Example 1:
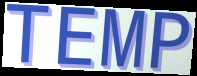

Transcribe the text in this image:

TEMP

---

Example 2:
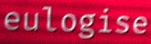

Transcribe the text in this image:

eulogise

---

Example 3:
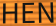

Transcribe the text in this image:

HEN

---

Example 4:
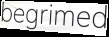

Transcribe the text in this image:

begrimed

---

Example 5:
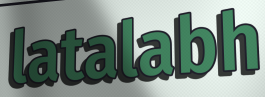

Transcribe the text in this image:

latalabh